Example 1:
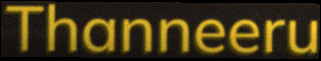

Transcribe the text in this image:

Thanneeru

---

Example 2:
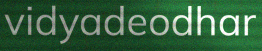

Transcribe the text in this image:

vidyadeodhar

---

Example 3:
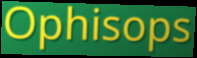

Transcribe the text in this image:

Ophisops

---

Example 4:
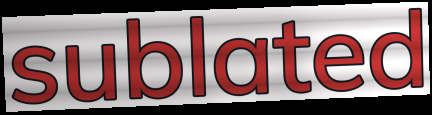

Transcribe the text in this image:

sublated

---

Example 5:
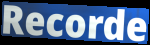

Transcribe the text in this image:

Recorde